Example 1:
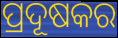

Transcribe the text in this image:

ପ୍ରଦୂଷକର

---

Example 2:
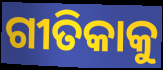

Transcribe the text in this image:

ଗୀତିକାକୁ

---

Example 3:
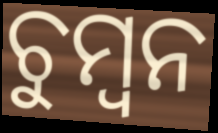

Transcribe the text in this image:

ଚୁମ୍ବନ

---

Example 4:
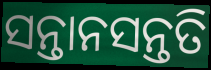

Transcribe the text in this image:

ସନ୍ତାନସନ୍ତତି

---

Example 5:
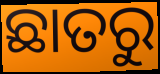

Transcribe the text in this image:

ଛାତରୁ